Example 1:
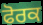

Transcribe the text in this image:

ਫੋਰਕ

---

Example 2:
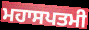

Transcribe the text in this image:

ਮਹਾਸਪਤਮੀ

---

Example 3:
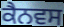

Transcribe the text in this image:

ਕੈਨਵਸ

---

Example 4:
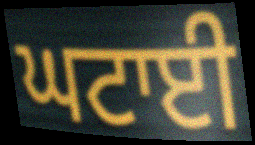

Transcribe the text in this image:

ਘਟਾਈ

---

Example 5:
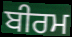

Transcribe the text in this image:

ਬੀਰਮ